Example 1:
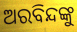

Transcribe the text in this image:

ଅରବିନ୍ଦଙ୍କୁ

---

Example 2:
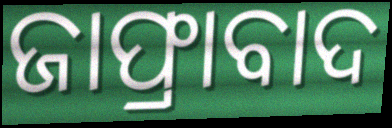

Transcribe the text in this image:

ଜାଫ୍ରାବାଦ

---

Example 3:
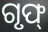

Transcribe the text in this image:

ଗୃଫ୍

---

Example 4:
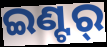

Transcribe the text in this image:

ଇଣ୍ଟର୍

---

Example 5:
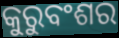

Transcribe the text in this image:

କୁରୁବଂଶର